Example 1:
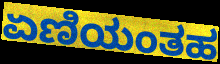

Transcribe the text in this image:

ಏಣಿಯಂತಹ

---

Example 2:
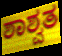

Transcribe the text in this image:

ಶಾಶ್ವತ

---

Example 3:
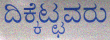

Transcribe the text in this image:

ದಿಕ್ಕೆಟ್ಟವರು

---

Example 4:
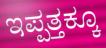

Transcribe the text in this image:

ಇಪ್ಪತ್ತಕ್ಕೂ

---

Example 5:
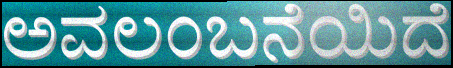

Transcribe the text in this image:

ಅವಲಂಬನೆಯಿದೆ